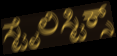
ಸ್ಟೈಲಿಸ್ಟಿಕ್ಸ್